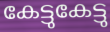
കേട്ടുകേട്ടു